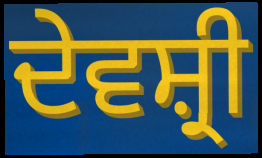
ਦੇਵਸ਼੍ਰੀ